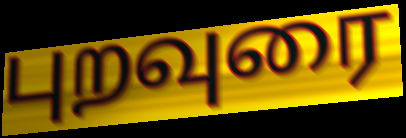
புறவுரை